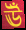
ঊঁ